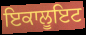
ਇਕਾਲੂਇਟ